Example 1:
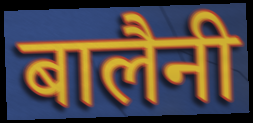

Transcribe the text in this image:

बालैनी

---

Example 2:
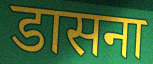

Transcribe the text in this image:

डासना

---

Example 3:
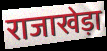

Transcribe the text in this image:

राजाखेड़ा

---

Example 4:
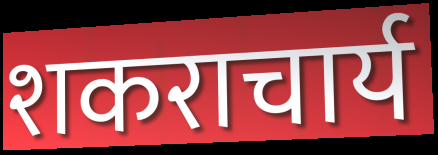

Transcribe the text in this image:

शकराचार्य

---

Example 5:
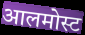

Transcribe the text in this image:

आलमोस्ट